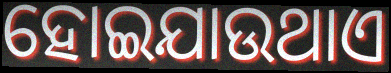
ହୋଇଯାଉଥାଏ